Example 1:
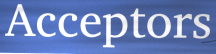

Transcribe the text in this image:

Acceptors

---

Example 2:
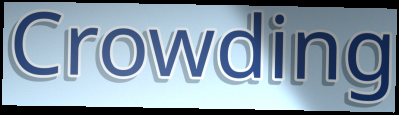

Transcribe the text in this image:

Crowding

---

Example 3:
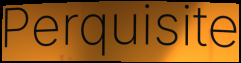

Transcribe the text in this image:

Perquisite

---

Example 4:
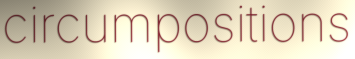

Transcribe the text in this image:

circumpositions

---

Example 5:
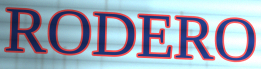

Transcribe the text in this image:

RODERO